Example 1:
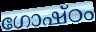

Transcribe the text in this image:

ഗോഷ്ഠം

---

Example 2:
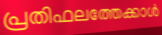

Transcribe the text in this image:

പ്രതിഫലത്തേക്കാൾ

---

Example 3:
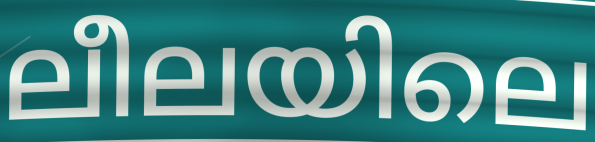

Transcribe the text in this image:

ലീലയിലെ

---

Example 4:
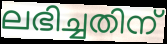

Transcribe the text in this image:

ലഭിച്ചതിന്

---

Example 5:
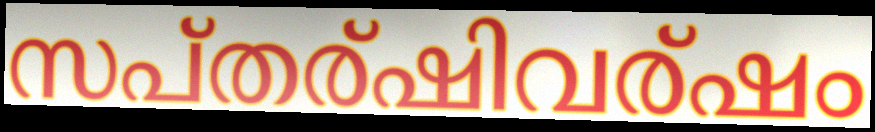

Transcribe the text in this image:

സപ്തര്ഷിവര്ഷം